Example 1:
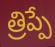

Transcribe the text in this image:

త్రిప్పే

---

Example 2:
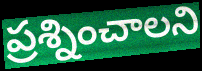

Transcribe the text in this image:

ప్రశ్నించాలని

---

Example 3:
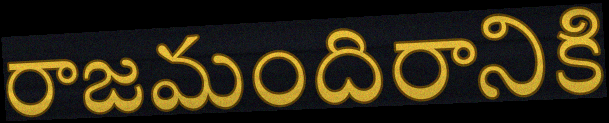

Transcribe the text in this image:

రాజమందిరానికి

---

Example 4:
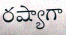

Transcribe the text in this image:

రష్యాగా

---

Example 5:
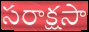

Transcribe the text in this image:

సరాక్షసా